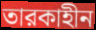
তারকাহীন